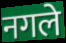
नगले